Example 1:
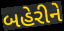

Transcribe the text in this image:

બહેરીને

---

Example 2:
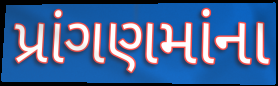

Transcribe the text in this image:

પ્રાંગણમાંના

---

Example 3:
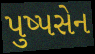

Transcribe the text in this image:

પુષ્પસેન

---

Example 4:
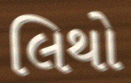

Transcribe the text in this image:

લિથો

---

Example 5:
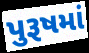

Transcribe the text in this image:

પુરૂષમાં